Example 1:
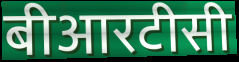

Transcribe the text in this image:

बीआरटीसी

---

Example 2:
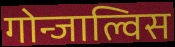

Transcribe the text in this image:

गोन्जाल्विस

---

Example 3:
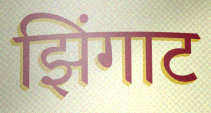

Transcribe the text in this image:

झिंगाट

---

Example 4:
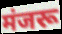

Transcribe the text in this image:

मंजरू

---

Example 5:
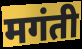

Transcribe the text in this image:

मगंती